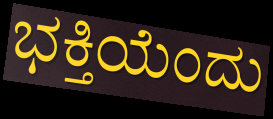
ಭಕ್ತಿಯೆಂದು